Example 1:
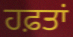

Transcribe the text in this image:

ਹਫ਼ਤਾਂ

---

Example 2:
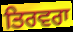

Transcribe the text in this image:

ਤਿਰਵਰਾ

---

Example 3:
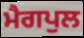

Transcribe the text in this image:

ਮੈਗਪੁਲ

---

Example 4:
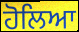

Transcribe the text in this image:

ਹੋਲਿਆ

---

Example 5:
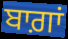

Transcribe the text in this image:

ਬਾਗ਼ਾਂ